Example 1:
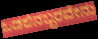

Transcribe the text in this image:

ಒಡಲಿನಬ್ಬರವೇನು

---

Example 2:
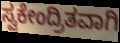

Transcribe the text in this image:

ಸ್ವಕೇಂದ್ರಿತವಾಗಿ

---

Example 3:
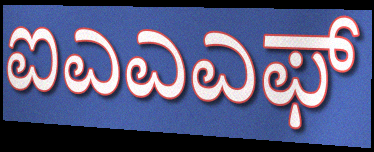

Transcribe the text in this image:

ಐಎಎಎಫ್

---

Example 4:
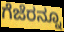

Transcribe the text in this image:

ಗೆಜೆರನ್ನೂ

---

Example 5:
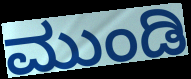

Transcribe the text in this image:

ಮುಂಡಿ